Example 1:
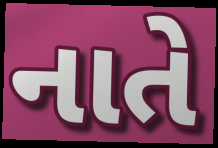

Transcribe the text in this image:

નાતે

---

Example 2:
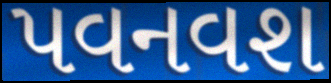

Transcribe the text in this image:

પવનવશ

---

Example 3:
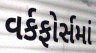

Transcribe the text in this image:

વર્કફોર્સમાં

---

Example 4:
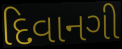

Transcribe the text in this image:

દિવાનગી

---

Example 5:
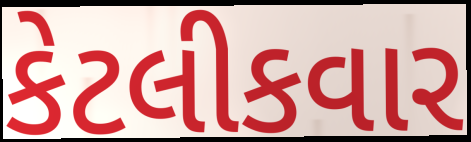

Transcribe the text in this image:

કેટલીકવાર